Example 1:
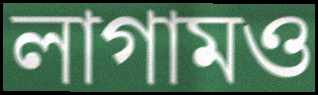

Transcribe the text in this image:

লাগামও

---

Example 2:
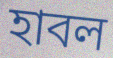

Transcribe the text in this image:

হাবল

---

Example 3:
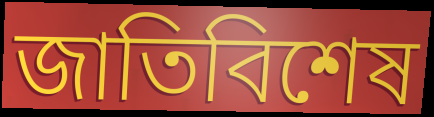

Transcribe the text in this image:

জাতিবিশেষ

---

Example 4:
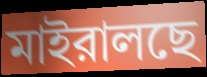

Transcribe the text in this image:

মাইরালছে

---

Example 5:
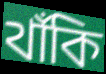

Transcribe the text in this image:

থাঁকি